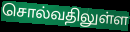
சொல்வதிலுள்ள